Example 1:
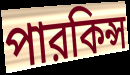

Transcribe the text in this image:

পারকিন্স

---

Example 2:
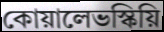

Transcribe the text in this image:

কোয়ালেভস্কিয়ি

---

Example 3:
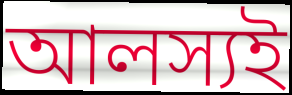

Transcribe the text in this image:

আলস্যই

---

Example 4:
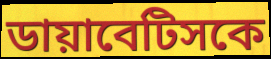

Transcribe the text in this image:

ডায়াবেটিসকে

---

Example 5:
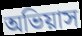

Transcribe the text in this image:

অভিয়াস